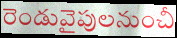
రెండువైపులనుంచీ